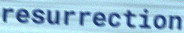
resurrection